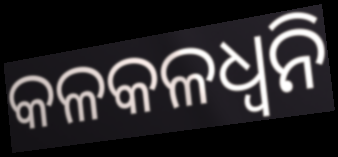
କଳକଳଧ୍ଵନି